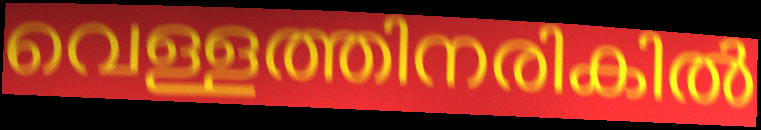
വെള്ളത്തിനരികിൽ